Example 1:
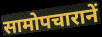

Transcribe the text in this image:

सामोपचारानें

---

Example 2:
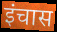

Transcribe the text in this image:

इंचास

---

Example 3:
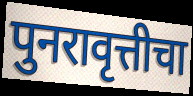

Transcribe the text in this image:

पुनरावृत्तीचा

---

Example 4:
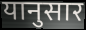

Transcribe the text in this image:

यानुसार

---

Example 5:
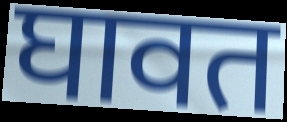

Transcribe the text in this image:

घावत